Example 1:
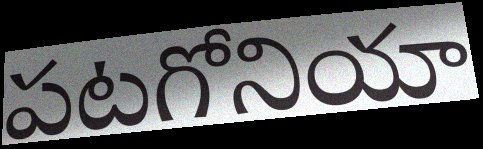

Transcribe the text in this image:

పటగోనియా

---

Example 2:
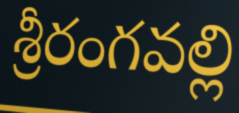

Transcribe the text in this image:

శ్రీరంగవల్లి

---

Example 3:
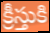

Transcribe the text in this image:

క్రీస్తుకి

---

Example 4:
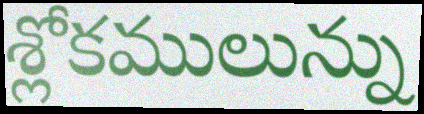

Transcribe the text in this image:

శ్లోకములున్ను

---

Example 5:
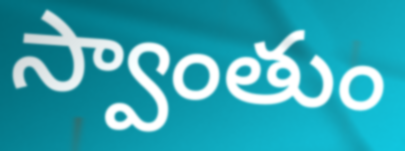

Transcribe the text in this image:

స్వాంతుం